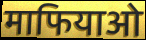
माफियाओ